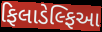
ફિલાડેલ્ફિઆ